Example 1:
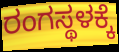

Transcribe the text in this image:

ರಂಗಸ್ಥಳಕ್ಕೆ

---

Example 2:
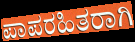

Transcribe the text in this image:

ಪಾಪರಹಿತರಾಗಿ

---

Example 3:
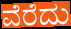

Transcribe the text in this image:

ವೆರೆದು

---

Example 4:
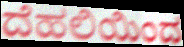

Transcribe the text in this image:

ದೆಹಲಿಯಿಂದ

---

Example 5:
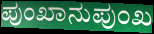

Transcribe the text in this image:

ಪುಂಖಾನುಪುಂಖ